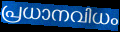
പ്രധാനവിധം